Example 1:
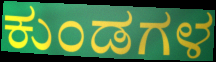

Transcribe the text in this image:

ಕುಂಡಗಳ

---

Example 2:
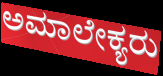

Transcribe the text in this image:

ಅಮಾಲೇಕ್ಯರು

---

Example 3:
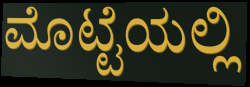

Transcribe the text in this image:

ಮೊಟ್ಟೆಯಲ್ಲಿ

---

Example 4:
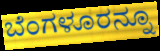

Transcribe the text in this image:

ಬೆಂಗಳೂರನ್ನೂ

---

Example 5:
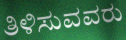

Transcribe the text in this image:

ತಿಳಿಸುವವರು